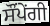
ਸੌਂਪੇਂਗੀ